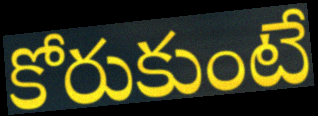
కోరుకుంటే